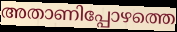
അതാണിപ്പോഴത്തെ